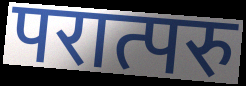
परात्परु